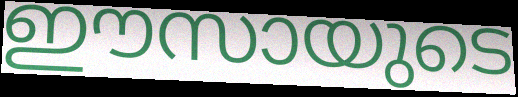
ഈസായുടെ